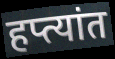
हप्त्यांत